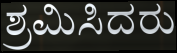
ಶ್ರಮಿಸಿದರು